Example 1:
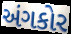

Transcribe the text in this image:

અંગકોર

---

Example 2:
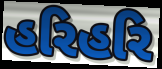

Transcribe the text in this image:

હરિહરિ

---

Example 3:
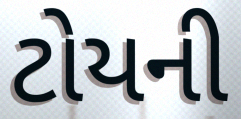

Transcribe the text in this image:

ટોયની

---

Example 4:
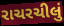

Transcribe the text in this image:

રાચરચીલું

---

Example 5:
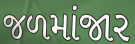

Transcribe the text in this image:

જળમાંજાર